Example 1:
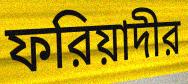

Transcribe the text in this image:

ফরিয়াদীর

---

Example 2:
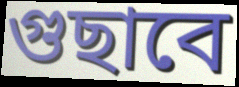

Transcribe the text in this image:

গুছাবে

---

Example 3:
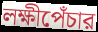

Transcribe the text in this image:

লক্ষীপেঁচার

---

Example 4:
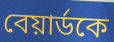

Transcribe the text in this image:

বেয়ার্ডকে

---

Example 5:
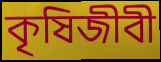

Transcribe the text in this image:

কৃষিজীবী